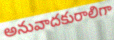
అనువాదకురాలిగా